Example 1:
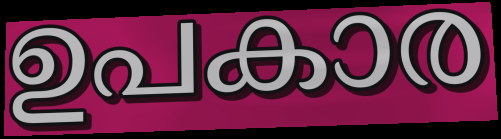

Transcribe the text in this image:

ഉപകാര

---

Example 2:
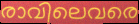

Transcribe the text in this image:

രാവിലെവരെ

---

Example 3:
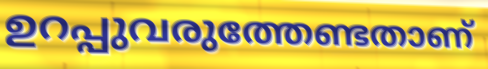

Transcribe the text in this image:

ഉറപ്പുവരുത്തേണ്ടതാണ്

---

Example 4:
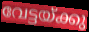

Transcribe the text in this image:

വേട്ടയ്ക്കു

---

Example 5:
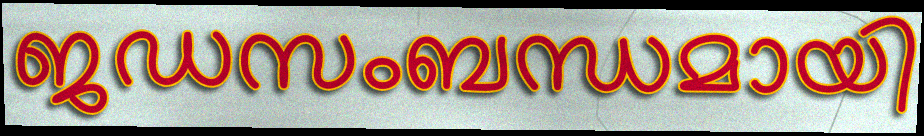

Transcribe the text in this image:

ജഡസംബന്ധമായി